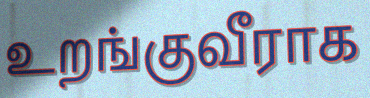
உறங்குவீராக